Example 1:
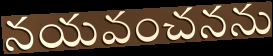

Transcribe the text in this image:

నయవంచనను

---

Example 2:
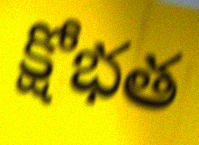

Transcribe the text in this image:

క్షోభత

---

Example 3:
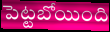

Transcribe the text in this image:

పెట్టబోయింది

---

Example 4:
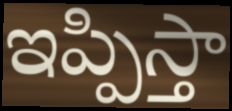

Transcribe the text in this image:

ఇప్పిస్తా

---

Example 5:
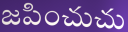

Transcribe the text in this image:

జపించుచు